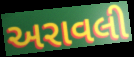
અરાવલી